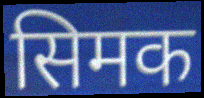
सिमक